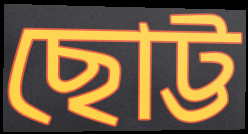
ছোট্ট